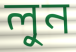
লুন